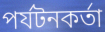
পর্যটনকর্তা